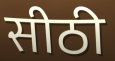
सीठी